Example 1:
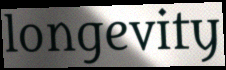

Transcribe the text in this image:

longevity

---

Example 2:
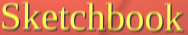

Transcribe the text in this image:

Sketchbook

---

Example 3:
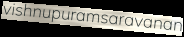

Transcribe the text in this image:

vishnupuramsaravanan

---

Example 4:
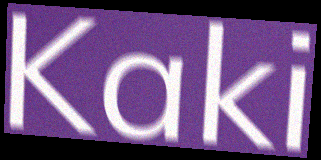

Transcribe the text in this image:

Kaki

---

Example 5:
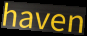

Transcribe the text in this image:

haven